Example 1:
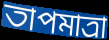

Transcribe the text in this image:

তাপমাত্রা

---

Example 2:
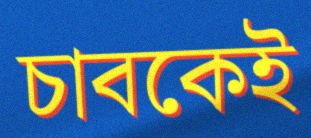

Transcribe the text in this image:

চাবকেই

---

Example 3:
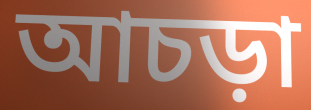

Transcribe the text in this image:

আচড়া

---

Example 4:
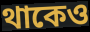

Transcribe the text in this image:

থাকেও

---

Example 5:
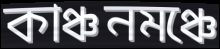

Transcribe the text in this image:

কাঞ্চনমঞ্চে